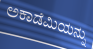
ಅಕಾಡೆಮಿಯನ್ನು